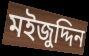
মইজুদ্দিন